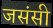
जसंसी